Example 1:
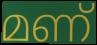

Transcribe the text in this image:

മണ്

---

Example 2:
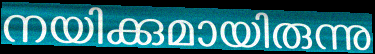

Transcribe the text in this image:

നയിക്കുമായിരുന്നു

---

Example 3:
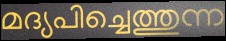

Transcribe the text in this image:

മദ്യപിച്ചെത്തുന്ന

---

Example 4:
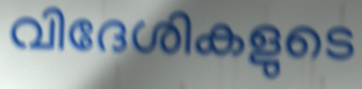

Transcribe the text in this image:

വിദേശികളുടെ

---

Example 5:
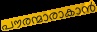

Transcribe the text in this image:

പൗരന്മാരാകാൻ